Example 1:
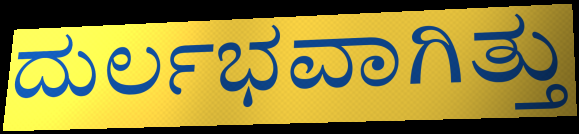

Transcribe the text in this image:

ದುರ್ಲಭವಾಗಿತ್ತು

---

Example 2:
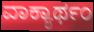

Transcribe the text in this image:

ವಾಕ್ಯಾರ್ಥಂ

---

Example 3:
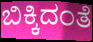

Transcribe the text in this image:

ಬಿಕ್ಕಿದಂತೆ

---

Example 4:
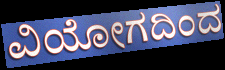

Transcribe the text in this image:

ವಿಯೋಗದಿಂದ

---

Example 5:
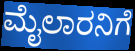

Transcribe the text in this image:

ಮೈಲಾರನಿಗೆ